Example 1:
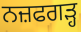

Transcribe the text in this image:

ਨਜ਼ਫਗੜ੍ਹ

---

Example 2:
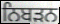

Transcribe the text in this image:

ਨਿਬੜਨ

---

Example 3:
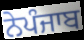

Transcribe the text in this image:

ਨੇਪੰਜਾਬ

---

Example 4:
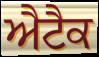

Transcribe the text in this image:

ਐਟੈਕ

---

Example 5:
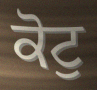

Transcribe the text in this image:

ਕੋਟੁ